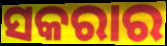
ସକରାର